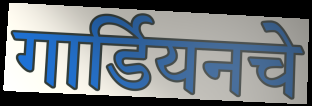
गार्डियनचे